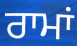
ਰਾਮਾਂ